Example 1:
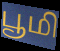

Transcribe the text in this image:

பூமி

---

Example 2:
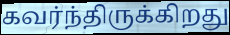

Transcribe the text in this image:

கவர்ந்திருக்கிறது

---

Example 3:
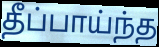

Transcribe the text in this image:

தீப்பாய்ந்த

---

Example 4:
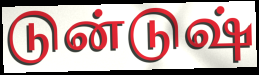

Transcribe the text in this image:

டுன்டுஷ்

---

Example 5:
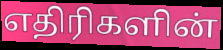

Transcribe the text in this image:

எதிரிகளின்